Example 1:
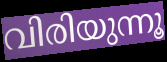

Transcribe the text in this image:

വിരിയുന്നൂ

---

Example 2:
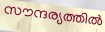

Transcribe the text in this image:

സൗന്ദര്യത്തിൽ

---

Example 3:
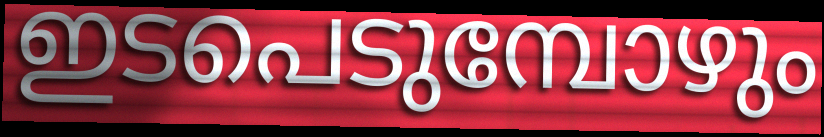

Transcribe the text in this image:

ഇടപെടുമ്പോഴും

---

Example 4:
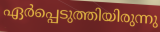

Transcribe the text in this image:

ഏർപ്പെടുത്തിയിരുന്നു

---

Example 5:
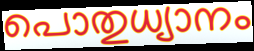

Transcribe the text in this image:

പൊതുധ്യാനം